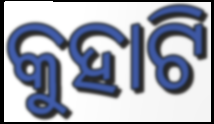
କୁହାଟି